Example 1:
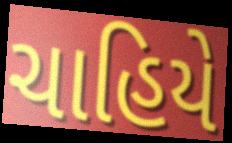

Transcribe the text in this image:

ચાહિયે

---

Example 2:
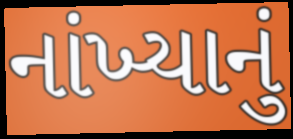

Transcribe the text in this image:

નાંખ્યાનું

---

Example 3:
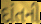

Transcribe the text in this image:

દાંતની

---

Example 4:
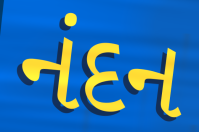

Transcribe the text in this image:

નંદન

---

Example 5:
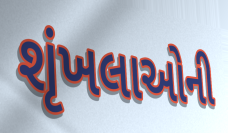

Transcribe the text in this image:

શૃંખલાઓની